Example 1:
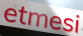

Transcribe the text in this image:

etmesi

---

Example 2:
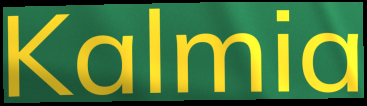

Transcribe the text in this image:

Kalmia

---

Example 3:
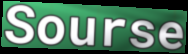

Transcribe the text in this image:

Sourse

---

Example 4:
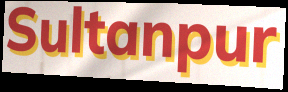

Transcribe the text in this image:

Sultanpur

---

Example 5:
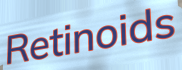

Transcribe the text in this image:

Retinoids